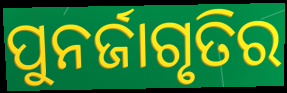
ପୁନର୍ଜାଗୃତିର